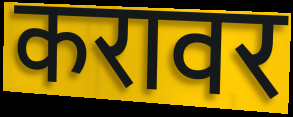
करावर